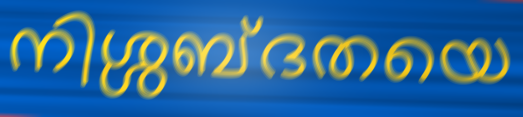
നിശ്ശബ്ദതയെ